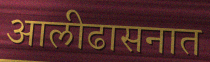
आलीढासनात